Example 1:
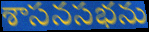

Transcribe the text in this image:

శాసనసభను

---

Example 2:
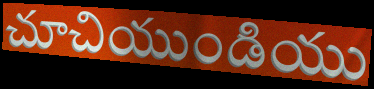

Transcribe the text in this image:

చూచియుండియు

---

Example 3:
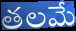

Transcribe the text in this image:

తలమే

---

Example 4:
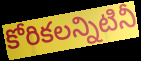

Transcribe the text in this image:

కోరికలన్నిటినీ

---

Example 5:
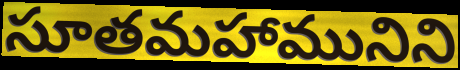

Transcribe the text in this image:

సూతమహామునిని